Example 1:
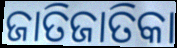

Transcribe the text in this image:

ଜାତିଜାତିକା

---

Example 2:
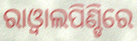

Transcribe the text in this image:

ରାଓ୍ଵାଲପିଣ୍ଡିରେ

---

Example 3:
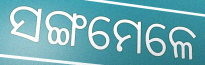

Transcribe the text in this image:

ସଙ୍ଗମେଳେ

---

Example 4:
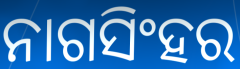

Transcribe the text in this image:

ନାଗସିଂହର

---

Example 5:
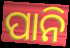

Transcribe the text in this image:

ପାନି